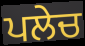
ਪਲੇਚ